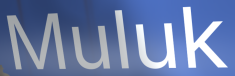
Muluk